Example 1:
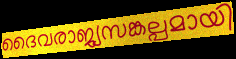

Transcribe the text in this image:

ദൈവരാജ്യസങ്കല്പമായി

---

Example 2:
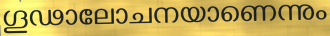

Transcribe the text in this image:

ഗൂഢാലോചനയാണെന്നും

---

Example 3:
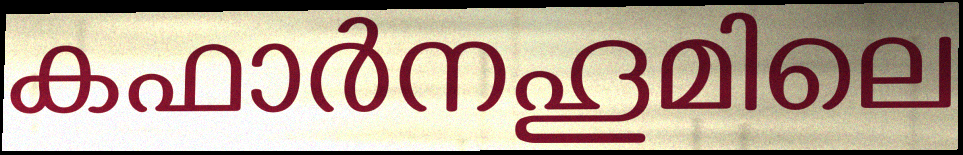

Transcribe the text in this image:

കഫാർനഹൂമിലെ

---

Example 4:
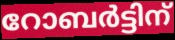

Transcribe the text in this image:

റോബർട്ടിന്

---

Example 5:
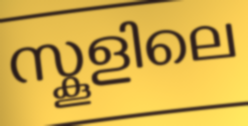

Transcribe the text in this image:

സ്കൂളിലെ